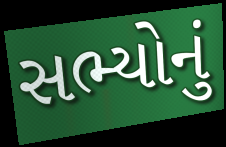
સભ્યોનું